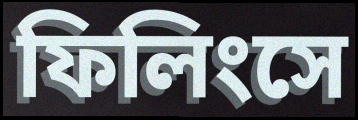
ফিলিংসে